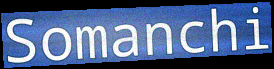
Somanchi